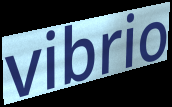
vibrio